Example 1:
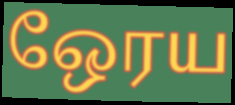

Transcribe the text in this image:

ஒேரய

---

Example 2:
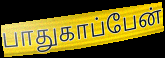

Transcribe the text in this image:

பாதுகாப்பேன்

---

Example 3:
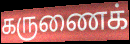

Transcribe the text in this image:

கருணைக்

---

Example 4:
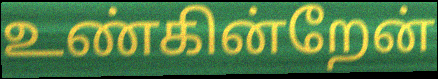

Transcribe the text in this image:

உண்கின்றேன்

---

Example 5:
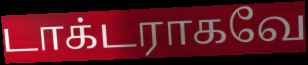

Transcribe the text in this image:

டாக்டராகவே